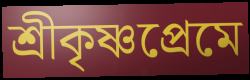
শ্রীকৃষ্ণপ্রেমে